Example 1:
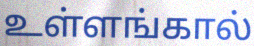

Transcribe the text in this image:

உள்ளங்கால்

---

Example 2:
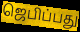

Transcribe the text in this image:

ஜெபிப்பது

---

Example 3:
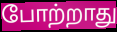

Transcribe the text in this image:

போற்றாது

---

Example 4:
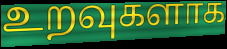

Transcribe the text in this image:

உறவுகளாக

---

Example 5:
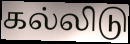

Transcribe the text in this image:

கல்லிடு